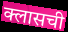
क्लासची